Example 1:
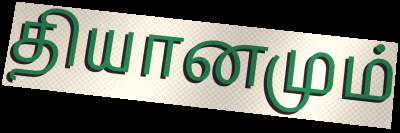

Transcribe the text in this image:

தியானமும்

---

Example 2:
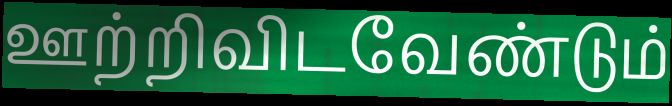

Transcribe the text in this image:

ஊற்றிவிடவேண்டும்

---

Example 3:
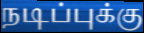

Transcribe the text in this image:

நடிப்புக்கு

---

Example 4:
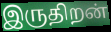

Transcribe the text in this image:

இருதிறன்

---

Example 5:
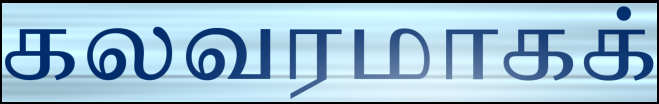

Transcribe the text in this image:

கலவரமாகக்